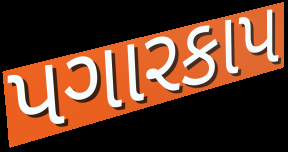
પગારકાપ